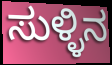
ಸುಳ್ಳಿನ